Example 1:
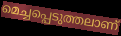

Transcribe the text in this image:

മെച്ചപ്പെടുത്തലാണ്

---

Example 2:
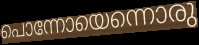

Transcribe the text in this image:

പൊന്നോയെന്നൊരു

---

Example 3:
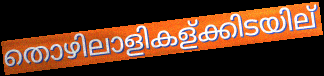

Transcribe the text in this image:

തൊഴിലാളികള്ക്കിടയില്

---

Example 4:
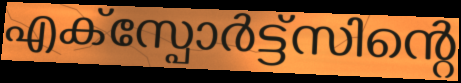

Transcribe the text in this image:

എക്സ്പോർട്ട്സിന്റെ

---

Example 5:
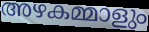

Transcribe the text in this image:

അഴകമ്മാളും